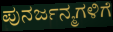
ಪುನರ್ಜನ್ಮಗಳಿಗೆ